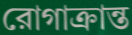
রোগাক্রান্ত